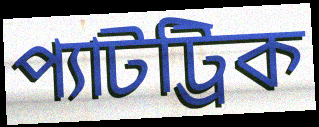
প্যাটট্রিক